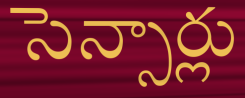
సెన్సార్లు